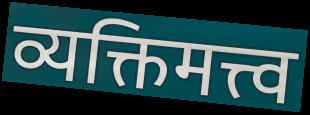
व्यक्तिमत्त्व